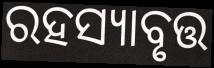
ରହସ୍ୟାବୃତ୍ତ